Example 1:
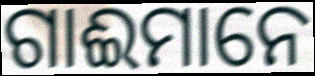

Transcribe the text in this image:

ଗାଈମାନେ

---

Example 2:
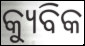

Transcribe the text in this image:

କ୍ୟୁବିକ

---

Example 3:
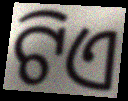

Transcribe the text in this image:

ଟିଏ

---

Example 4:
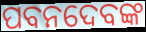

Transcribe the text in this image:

ପବନଦେବଙ୍କ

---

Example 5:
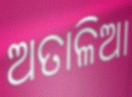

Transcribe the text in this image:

ଅତାଳିଆ